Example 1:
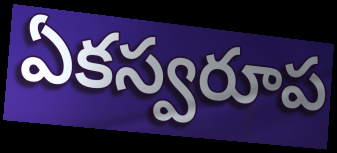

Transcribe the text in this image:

ఏకస్వరూప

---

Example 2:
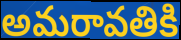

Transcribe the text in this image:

అమరావతికి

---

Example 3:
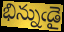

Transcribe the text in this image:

భిన్నుఁడై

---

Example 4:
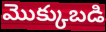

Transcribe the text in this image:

మొక్కుబడి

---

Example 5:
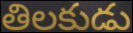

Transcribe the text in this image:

తిలకుడు